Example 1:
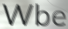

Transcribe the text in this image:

Wbe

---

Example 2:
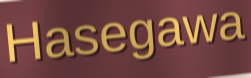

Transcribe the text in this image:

Hasegawa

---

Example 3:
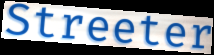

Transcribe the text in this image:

Streeter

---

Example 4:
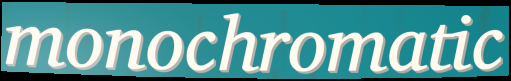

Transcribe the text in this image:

monochromatic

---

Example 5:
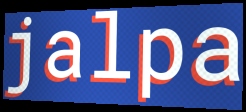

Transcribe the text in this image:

jalpa